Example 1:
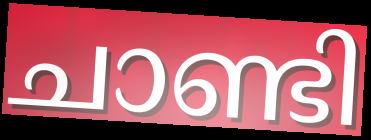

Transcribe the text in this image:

ചാണ്ടി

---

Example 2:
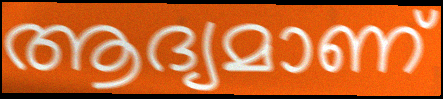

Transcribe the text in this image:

ആദ്യമാണ്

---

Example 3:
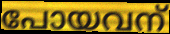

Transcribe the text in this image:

പോയവന്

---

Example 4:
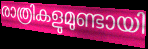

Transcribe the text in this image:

രാത്രികളുമുണ്ടായി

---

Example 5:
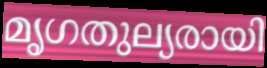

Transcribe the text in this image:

മൃഗതുല്യരായി